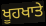
ਖੂਹਖਾਤੇ